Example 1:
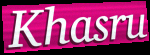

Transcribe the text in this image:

Khasru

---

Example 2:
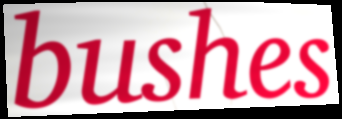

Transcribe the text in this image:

bushes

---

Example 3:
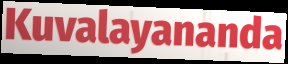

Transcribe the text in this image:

Kuvalayananda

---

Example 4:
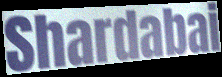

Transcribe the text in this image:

Shardabai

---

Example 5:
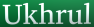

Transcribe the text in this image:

Ukhrul